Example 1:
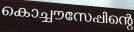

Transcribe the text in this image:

കൊച്ചൗസേപ്പിന്റെ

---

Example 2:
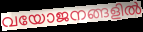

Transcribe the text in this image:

വയോജനങ്ങളിൽ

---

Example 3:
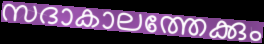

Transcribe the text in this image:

സദാകാലത്തേക്കും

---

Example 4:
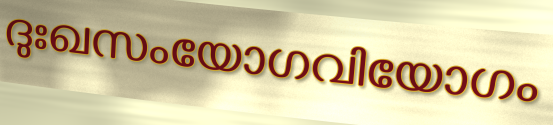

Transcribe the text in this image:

ദുഃഖസംയോഗവിയോഗം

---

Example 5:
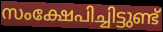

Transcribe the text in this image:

സംക്ഷേപിച്ചിട്ടുണ്ട്